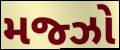
મજ્ઝો